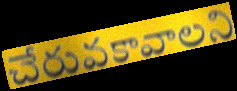
చేరువకావాలని